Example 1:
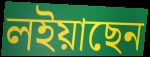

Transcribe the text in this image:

লইয়াছেন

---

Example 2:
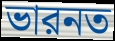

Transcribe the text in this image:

ভারনত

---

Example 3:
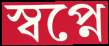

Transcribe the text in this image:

স্বপ্নে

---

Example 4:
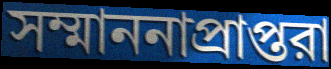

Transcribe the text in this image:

সম্মাননাপ্রাপ্তরা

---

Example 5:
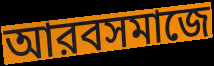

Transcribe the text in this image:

আরবসমাজে